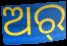
ଅର୍